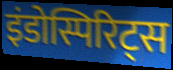
इंडोस्पिरिट्स